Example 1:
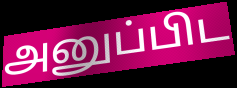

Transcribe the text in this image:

அனுப்பிட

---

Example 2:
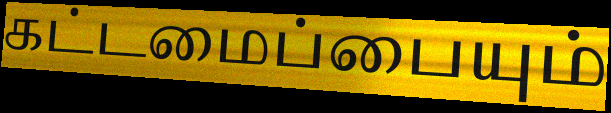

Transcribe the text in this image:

கட்டமைப்பையும்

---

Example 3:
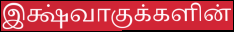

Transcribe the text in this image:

இக்ஷ்வாகுக்களின்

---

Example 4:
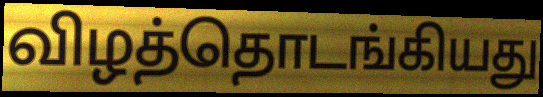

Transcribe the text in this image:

விழத்தொடங்கியது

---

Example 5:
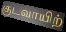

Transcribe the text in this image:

குடவாயிற்